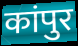
कांपुर